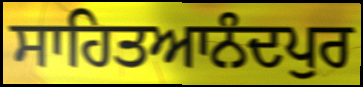
ਸਾਹਿਤਆਨੰਦਪੁਰ